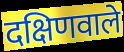
दक्षिणवाले